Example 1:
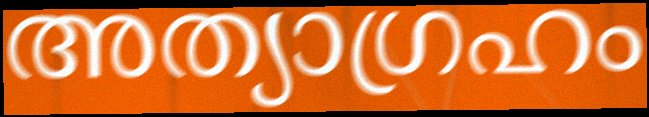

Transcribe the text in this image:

അത്യാഗ്രഹം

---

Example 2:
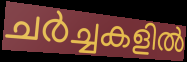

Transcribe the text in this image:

ചർച്ചകളിൽ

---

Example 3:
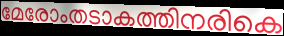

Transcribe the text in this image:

മേരോംതടാകത്തിനരികെ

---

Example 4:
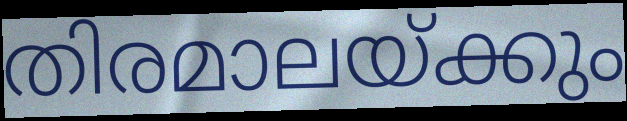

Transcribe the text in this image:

തിരമാലയ്ക്കും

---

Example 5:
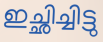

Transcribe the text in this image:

ഇച്ഛിച്ചിട്ടു